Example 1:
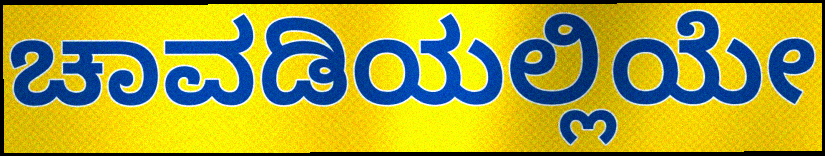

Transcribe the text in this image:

ಚಾವಡಿಯಲ್ಲಿಯೇ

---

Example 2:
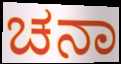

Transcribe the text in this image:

ಚನಾ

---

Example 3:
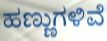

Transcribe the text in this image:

ಹಣ್ಣುಗಳಿವೆ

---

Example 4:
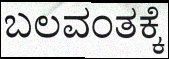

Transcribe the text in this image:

ಬಲವಂತಕ್ಕೆ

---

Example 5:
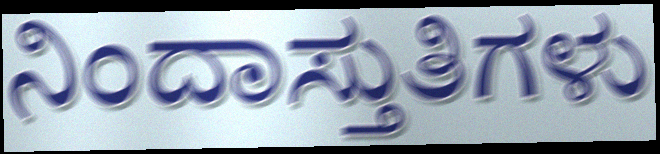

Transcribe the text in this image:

ನಿಂದಾಸ್ತುತಿಗಳು